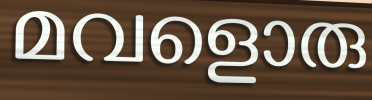
മവളൊരു